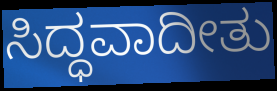
ಸಿದ್ಧವಾದೀತು